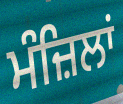
ਮੰਜ਼ਿਲਾਂ